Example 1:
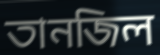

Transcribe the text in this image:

তানজিল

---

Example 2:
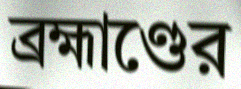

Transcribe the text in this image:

ব্রহ্মাণ্ডের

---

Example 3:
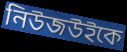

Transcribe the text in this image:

নিউজউইকে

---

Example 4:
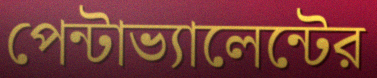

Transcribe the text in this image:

পেন্টাভ্যালেন্টের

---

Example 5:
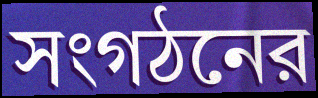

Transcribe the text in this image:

সংগঠনের